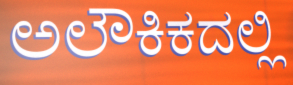
ಅಲೌಕಿಕದಲ್ಲಿ